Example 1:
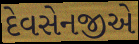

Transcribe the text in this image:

દેવસેનજીએ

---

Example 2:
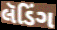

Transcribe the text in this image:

લૅડિંગ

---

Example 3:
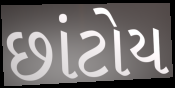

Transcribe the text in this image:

છાંટોય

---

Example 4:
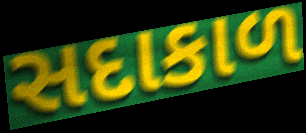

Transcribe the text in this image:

સદાકાળ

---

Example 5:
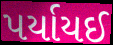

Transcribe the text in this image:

પર્યાયઈ